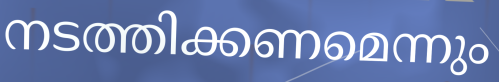
നടത്തിക്കണമെന്നും